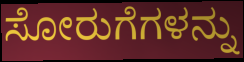
ಸೋರುಗೆಗಳನ್ನು